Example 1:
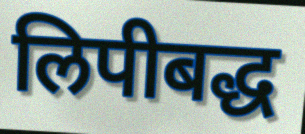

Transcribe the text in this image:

लिपीबद्ध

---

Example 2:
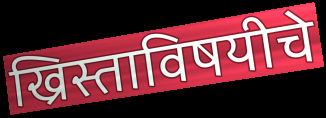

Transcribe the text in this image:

ख्रिस्ताविषयीचे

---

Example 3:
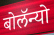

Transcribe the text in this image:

बोलॅन्यो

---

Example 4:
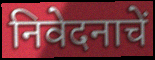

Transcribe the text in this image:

निवेदनाचें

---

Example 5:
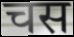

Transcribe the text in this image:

चस